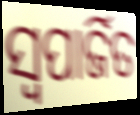
ସ୍ଵପାର୍ଜିତ